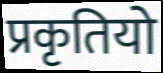
प्रकृतियो